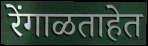
रेंगाळताहेत